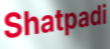
Shatpadi